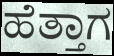
ಹೆತ್ತಾಗ